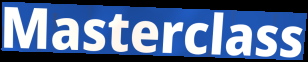
Masterclass